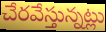
చేరవేస్తున్నట్లు